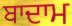
ਬਾਦਾਮ